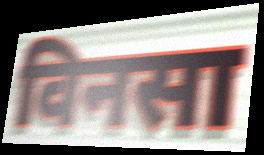
विनसा